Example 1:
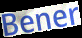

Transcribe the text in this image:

Bener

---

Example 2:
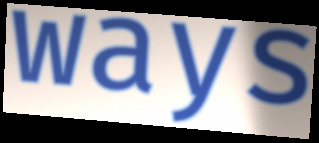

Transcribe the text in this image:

ways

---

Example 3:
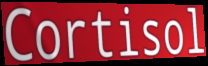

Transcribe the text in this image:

Cortisol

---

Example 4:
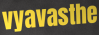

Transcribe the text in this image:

vyavasthe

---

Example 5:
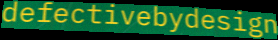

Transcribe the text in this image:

defectivebydesign